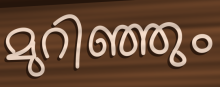
മുറിഞ്ഞും